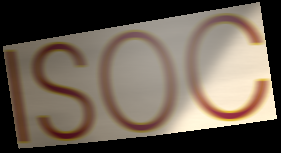
ISOC